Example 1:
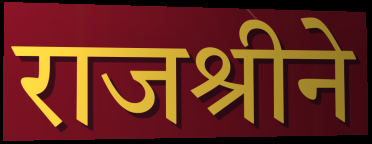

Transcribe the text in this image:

राजश्रीने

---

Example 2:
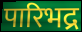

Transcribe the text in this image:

पारिभद्र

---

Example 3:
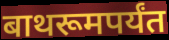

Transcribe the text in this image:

बाथरूमपर्यंत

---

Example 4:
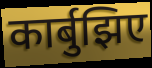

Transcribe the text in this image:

कार्बुझिए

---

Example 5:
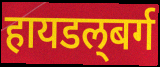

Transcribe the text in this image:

हायडल्‌बर्ग